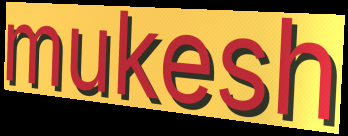
mukesh